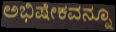
ಅಭಿಷೇಕವನ್ನೂ